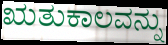
ಋತುಕಾಲವನ್ನು